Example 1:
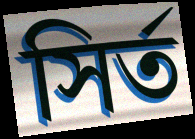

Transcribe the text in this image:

সির্ত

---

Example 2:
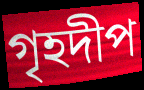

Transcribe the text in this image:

গৃহদীপ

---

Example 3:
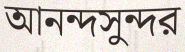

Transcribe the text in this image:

আনন্দসুন্দর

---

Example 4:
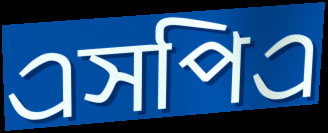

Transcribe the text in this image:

এসপিএ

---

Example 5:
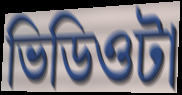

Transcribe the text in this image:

ভিডিওটা